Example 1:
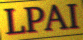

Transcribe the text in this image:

LPAI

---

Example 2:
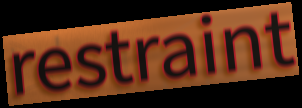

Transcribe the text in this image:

restraint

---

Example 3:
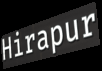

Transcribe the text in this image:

Hirapur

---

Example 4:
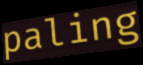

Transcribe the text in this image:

paling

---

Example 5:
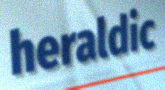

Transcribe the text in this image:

heraldic